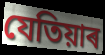
যেতিয়াৰ